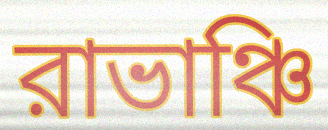
রাভাঞ্চি